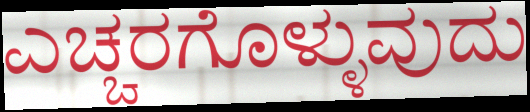
ಎಚ್ಚರಗೊಳ್ಳುವುದು